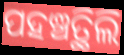
ପହଞ୍ଚତ୍ଥିଲି